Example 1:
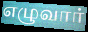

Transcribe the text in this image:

எழுவார்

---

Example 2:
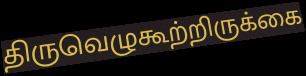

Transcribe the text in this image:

திருவெழுகூற்றிருக்கை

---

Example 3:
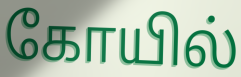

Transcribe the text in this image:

கோயில்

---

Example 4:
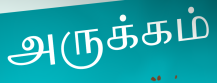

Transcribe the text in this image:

அருக்கம்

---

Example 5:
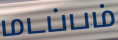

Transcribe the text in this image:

மடப்பம்